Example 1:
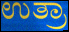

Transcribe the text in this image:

ಉತ್ರಾ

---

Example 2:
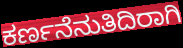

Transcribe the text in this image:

ಕರ್ಣನೆನುತಿದಿರಾಗಿ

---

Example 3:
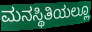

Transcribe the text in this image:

ಮನಸ್ಥಿತಿಯಲ್ಲೂ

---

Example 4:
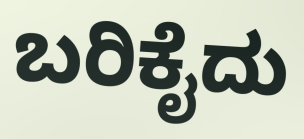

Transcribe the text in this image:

ಬರಿಕೈದು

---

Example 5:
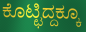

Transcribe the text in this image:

ಕೊಟ್ಟಿದ್ದಕ್ಕೂ